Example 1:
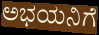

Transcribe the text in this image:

ಅಭಯನಿಗೆ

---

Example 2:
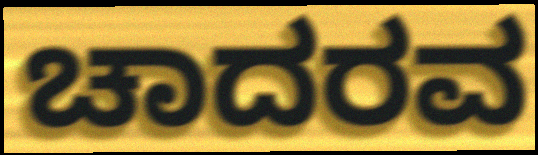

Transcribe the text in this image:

ಚಾದರವ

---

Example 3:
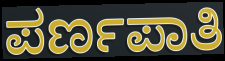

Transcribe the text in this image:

ಪರ್ಣಪಾತಿ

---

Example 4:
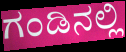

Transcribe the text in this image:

ಗಂಡಿನಲ್ಲಿ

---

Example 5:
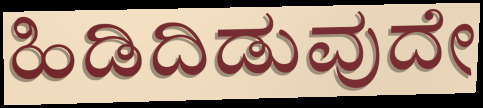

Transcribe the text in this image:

ಹಿಡಿದಿಡುವುದೇ